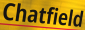
Chatfield